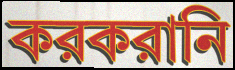
করকরানি